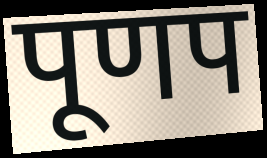
पूणप